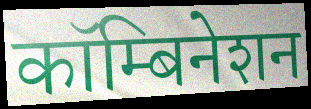
कॉम्बिनेशन